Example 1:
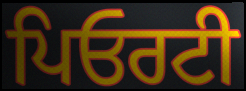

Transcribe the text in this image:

ਪਿਓਰਟੀ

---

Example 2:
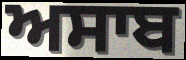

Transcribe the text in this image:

ਅਸਾਬ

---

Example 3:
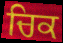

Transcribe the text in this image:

ਚਿਕ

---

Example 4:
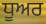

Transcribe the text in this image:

ਧੂਅਰ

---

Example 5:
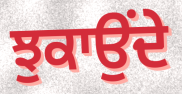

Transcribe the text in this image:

ਝੁਕਾਉਂਦੇ